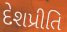
દેશપ્રીતિ